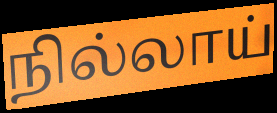
நில்லாய்